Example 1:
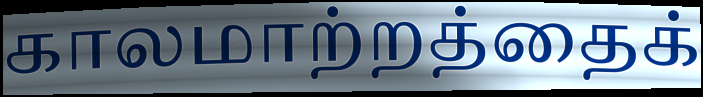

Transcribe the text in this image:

காலமாற்றத்தைக்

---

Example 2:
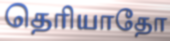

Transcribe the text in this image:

தெரியாதோ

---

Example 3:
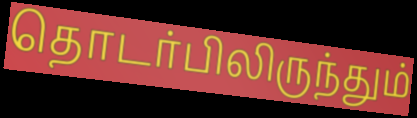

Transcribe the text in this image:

தொடர்பிலிருந்தும்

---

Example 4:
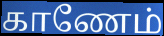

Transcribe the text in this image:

காணேம்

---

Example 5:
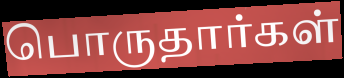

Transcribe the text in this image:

பொருதார்கள்